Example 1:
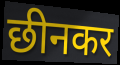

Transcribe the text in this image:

छीनकर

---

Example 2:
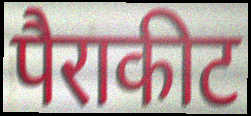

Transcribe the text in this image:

पैराकीट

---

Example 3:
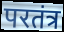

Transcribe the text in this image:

परतंत्र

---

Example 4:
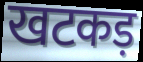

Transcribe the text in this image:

खटकड़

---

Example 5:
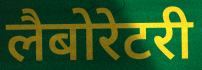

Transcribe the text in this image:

लैबोरेटरी